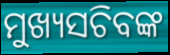
ମୁଖ୍ୟସଚିବଙ୍କ